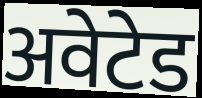
अवेटेड